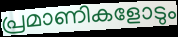
പ്രമാണികളോടും